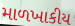
માળખાકીય